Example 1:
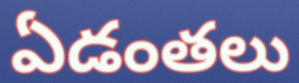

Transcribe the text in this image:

ఏడంతలు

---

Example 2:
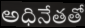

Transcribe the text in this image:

అధినేతతో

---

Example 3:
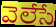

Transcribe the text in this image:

వెలేసే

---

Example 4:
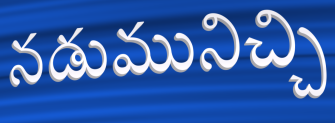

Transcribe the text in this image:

నడుమునిచ్చి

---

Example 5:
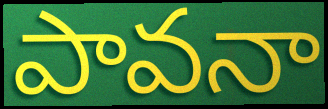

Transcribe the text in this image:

పావనా